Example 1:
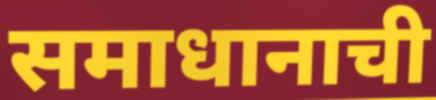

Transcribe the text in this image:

समाधानाची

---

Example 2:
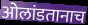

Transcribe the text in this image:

ओलांडतानाच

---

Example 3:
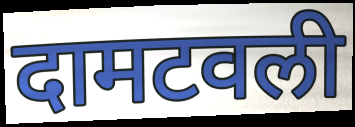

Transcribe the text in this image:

दामटवली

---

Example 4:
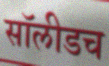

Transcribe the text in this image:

सॉलीडच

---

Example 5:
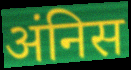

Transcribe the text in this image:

अंनिस